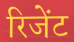
रिजेंट